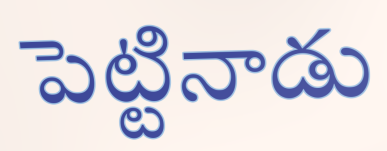
పెట్టినాడు